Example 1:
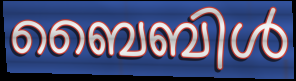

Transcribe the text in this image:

ബൈബിൾ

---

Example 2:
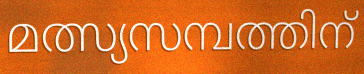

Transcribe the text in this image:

മത്സ്യസമ്പത്തിന്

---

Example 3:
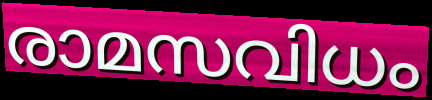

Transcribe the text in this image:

രാമസവിധം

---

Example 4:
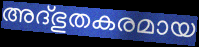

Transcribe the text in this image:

അദ്ഭുതകരമായ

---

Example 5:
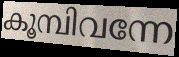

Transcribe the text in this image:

കൂമ്പിവന്നേ